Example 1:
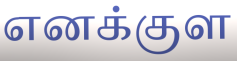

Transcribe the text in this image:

எனக்குள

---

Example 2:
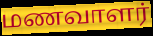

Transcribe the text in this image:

மணவாளர்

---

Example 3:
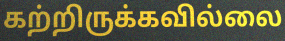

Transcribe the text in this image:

கற்றிருக்கவில்லை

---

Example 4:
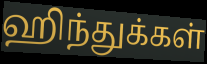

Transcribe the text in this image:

ஹிந்துக்கள்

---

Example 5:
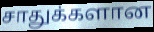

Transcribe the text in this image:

சாதுக்களான